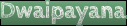
Dwaipayana